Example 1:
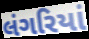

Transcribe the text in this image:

લંગરિયાં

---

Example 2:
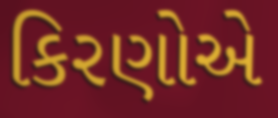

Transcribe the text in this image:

કિરણોએ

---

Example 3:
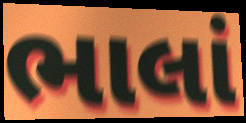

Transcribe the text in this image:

ભાલાં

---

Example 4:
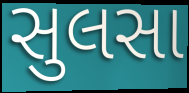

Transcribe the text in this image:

સુલસા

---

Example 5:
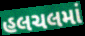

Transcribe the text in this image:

હલચલમાં